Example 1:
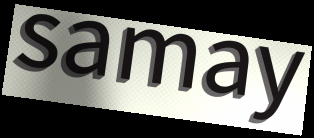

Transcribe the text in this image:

samay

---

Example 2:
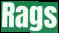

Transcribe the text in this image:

Rags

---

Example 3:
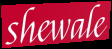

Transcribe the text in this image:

shewale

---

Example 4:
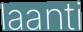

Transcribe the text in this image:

laanti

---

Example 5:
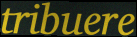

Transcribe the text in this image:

tribuere